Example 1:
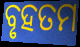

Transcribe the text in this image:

ବୃହତମ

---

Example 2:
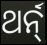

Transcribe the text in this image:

ଥର୍ନ୍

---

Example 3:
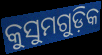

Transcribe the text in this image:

କୁସୁମଗୁଡ଼ିକ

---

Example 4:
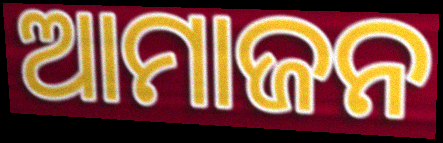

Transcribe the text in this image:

ଆମାଜନ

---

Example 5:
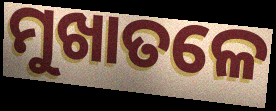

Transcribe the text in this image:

ମୁଖାତଳେ